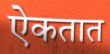
ऐकतात